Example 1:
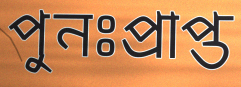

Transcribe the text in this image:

পুনঃপ্রাপ্ত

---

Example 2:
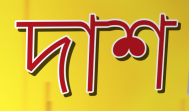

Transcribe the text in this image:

দাশ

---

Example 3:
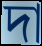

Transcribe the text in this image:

দা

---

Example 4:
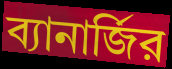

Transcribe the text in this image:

ব্যানার্জির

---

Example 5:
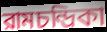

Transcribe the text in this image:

রামচন্দ্রিকা